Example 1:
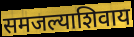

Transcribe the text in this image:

समजल्याशिवाय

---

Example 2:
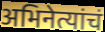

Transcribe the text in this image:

अभिनेत्यांचं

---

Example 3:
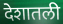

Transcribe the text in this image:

देशातली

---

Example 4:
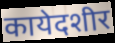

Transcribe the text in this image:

कायेदशीर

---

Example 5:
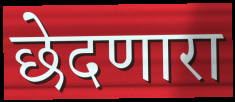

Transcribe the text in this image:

छेदणारा